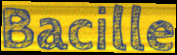
Bacille